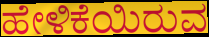
ಹೇಳಿಕೆಯಿರುವ